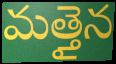
మత్తైన